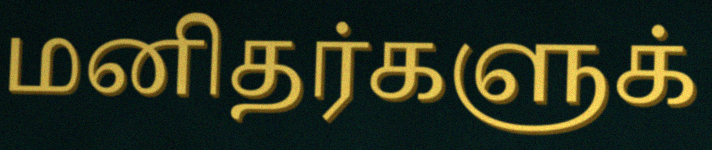
மனிதர்களுக்